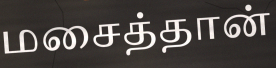
மசைத்தான்